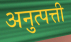
अनुत्पत्ती